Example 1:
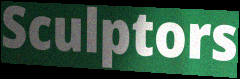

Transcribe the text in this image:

Sculptors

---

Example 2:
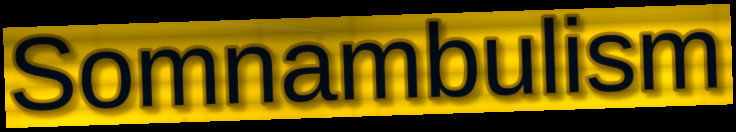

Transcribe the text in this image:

Somnambulism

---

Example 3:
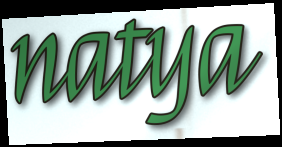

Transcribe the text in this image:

natya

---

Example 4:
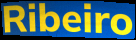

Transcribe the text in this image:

Ribeiro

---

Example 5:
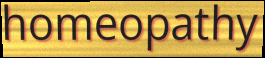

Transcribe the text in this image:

homeopathy